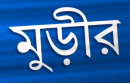
মুড়ীর